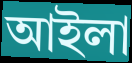
আইলা